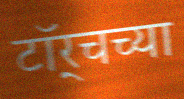
टॉर्चच्या